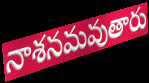
నాశనమవుతారు